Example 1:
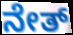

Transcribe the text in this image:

ನೇತ್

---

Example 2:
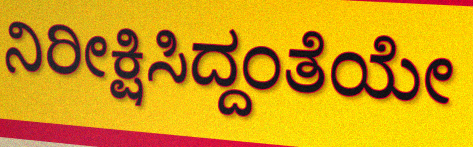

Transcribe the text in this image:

ನಿರೀಕ್ಷಿಸಿದ್ದಂತೆಯೇ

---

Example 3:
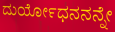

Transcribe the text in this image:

ದುರ್ಯೋಧನನನ್ನೇ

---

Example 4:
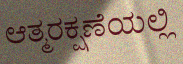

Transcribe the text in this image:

ಆತ್ಮರಕ್ಷಣೆಯಲ್ಲಿ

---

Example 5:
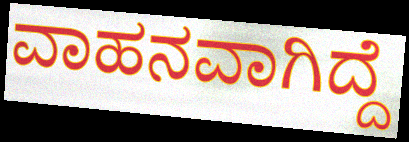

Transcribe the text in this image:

ವಾಹನವಾಗಿದ್ದೆ